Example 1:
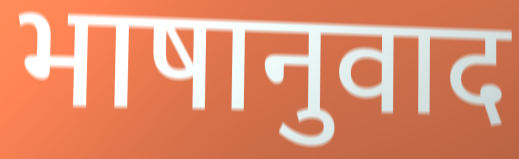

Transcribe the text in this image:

भाषानुवाद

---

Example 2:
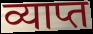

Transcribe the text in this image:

व्‍याप्‍त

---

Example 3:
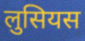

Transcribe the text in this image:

लुसियस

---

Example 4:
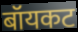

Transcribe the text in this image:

बॉयकट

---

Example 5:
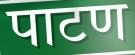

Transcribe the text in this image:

पाटण